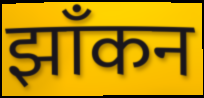
झाँकन